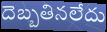
దెబ్బతినలేదు